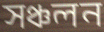
সঞ্চলন